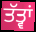
ਤੱਤ੍ਵਾਂ